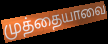
முத்தையாவை